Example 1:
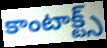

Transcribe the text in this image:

కాంటాక్ట్స్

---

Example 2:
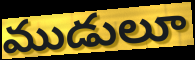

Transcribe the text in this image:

ముడులూ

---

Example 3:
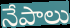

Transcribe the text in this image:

నేపాలు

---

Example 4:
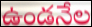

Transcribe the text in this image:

ఉండనేల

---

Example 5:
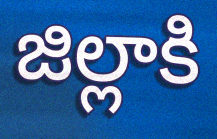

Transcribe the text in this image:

జిల్లాకి